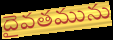
దైవతమును